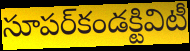
సూపర్‌కండక్టివిటీ